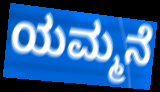
ಯಮ್ಮನೆ